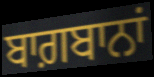
ਬਾਗ਼ਬਾਨਾਂ